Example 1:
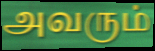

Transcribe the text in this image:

அவரும்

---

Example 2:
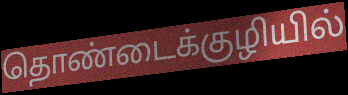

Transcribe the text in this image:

தொண்டைக்குழியில்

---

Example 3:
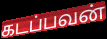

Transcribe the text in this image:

கடப்பவன்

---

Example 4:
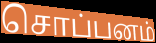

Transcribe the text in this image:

சொப்பனம்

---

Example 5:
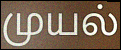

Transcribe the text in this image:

முயல்